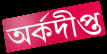
অর্কদীপ্ত